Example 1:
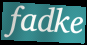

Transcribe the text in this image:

fadke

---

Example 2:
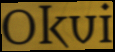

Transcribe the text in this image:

Okui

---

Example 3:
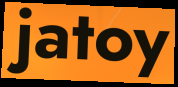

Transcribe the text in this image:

jatoy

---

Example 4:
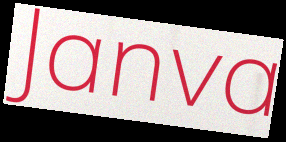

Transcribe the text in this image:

Janva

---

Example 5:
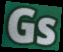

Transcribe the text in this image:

Gs